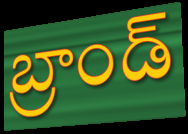
బ్రాండ్